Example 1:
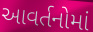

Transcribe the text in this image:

આવર્તનોમાં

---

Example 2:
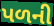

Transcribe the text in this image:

પળની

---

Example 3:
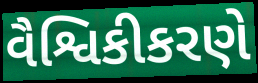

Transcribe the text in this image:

વૈશ્વિકીકરણે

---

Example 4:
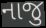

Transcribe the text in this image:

નાજુ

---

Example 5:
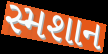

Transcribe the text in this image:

સ્મશાન